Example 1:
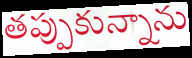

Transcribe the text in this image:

తప్పుకున్నాను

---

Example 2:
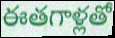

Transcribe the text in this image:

ఈతగాళ్లతో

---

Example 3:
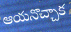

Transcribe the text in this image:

ఆయనొచ్చాక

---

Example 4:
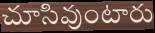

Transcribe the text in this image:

చూసివుంటారు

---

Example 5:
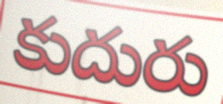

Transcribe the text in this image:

కుదురు